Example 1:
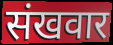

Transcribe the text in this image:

संखवार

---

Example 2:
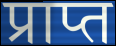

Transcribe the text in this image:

प्राप्‍त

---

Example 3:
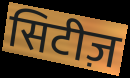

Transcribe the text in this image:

सिटीज़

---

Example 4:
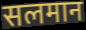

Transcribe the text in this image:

सलमान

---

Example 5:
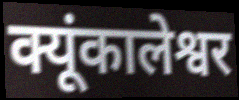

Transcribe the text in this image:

क्यूंकालेश्वर